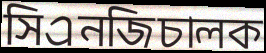
সিএনজিচালক